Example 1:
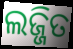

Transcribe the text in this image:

ଲଜ୍ଜିତ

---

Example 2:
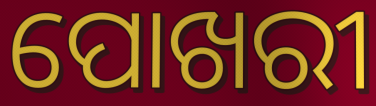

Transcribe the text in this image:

ପୋଖରୀ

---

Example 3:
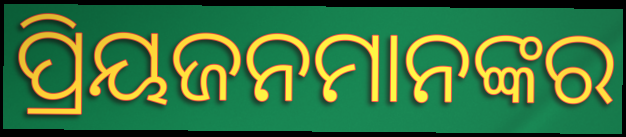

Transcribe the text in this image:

ପ୍ରିୟଜନମାନଙ୍କର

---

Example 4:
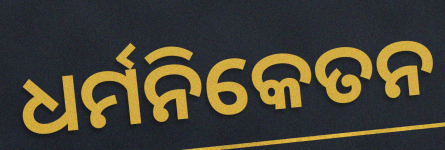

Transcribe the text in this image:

ଧର୍ମନିକେତନ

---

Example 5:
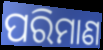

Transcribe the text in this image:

ପରିମାଣ